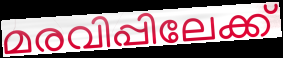
മരവിപ്പിലേക്ക്